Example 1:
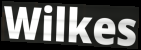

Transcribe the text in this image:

Wilkes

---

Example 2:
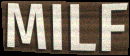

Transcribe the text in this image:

MILF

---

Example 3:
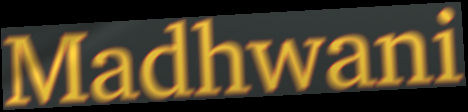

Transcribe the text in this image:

Madhwani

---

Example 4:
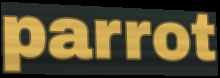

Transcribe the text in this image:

parrot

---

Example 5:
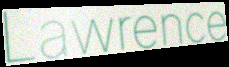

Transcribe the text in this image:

Lawrence